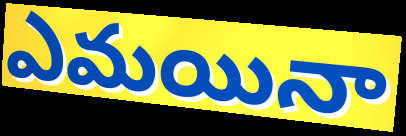
ఎమయినా